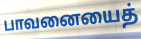
பாவனையைத்